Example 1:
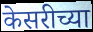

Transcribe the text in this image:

केसरीच्या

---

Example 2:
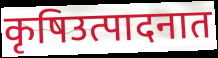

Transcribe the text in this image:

कृषिउत्पादनात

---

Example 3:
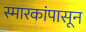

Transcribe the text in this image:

स्मारकांपासून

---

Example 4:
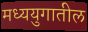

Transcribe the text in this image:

मध्ययुगातील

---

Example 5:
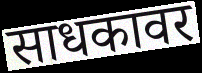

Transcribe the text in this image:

साधकावर